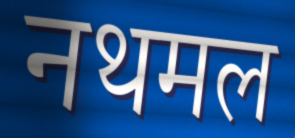
नथमल